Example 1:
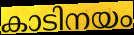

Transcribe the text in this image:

കാടിനയം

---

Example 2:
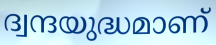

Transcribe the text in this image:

ദ്വന്ദയുദ്ധമാണ്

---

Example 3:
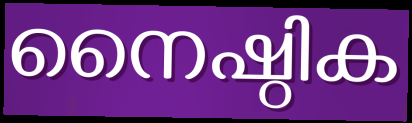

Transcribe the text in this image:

നൈഷ്ഠിക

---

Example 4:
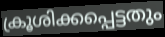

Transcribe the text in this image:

ക്രൂശിക്കപ്പെട്ടതും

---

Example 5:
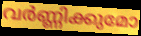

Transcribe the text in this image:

വർണ്ണിക്കുമോ